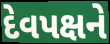
દેવપક્ષને